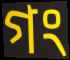
গং